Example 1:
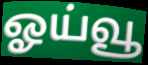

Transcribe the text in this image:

ஓய்வூ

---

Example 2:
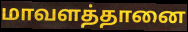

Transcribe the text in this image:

மாவளத்தானை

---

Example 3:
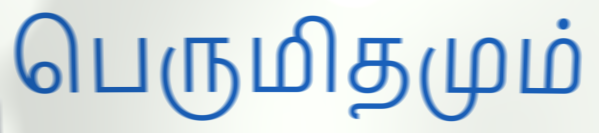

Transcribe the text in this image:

பெருமிதமும்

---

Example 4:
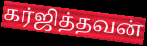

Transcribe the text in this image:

கர்ஜித்தவன்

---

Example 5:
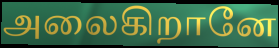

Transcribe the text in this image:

அலைகிறானே